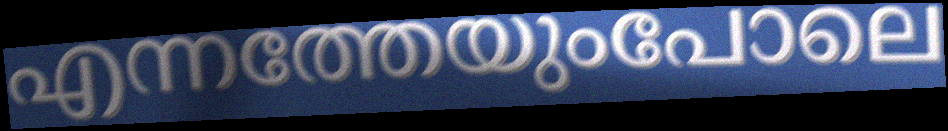
എന്നത്തേയുംപോലെ